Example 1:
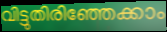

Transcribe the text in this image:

വിട്ടുതിരിഞ്ഞേക്കാം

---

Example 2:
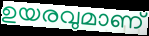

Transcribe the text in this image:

ഉയരവുമാണ്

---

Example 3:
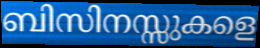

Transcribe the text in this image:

ബിസിനസ്സുകളെ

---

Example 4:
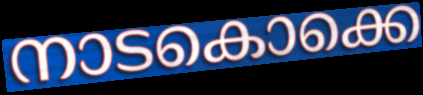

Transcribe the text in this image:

നാടകൊക്കെ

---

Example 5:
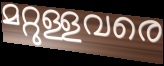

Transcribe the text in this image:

മറ്റുള്ളവരെ